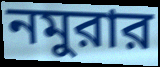
নমুরার